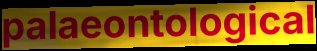
palaeontological